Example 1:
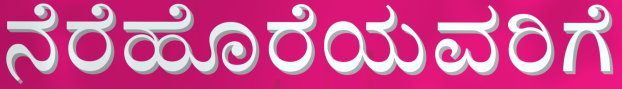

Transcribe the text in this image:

ನೆರೆಹೊರೆಯವರಿಗೆ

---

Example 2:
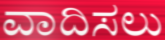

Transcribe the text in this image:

ವಾದಿಸಲು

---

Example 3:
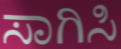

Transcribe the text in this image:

ಸಾಗಿಸಿ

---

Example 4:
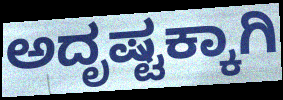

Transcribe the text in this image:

ಅದೃಷ್ಟಕ್ಕಾಗಿ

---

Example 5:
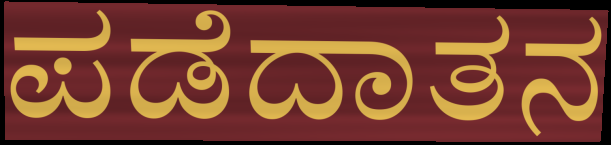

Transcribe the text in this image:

ಪಡೆದಾತನ